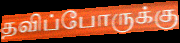
தவிப்போருக்கு